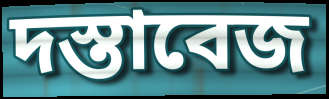
দস্তাবেজ